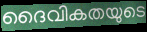
ദൈവികതയുടെ